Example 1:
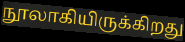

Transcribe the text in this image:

நூலாகியிருக்கிறது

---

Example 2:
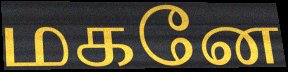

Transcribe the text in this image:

மகனே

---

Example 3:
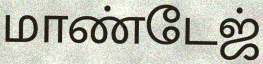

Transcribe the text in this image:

மாண்டேஜ்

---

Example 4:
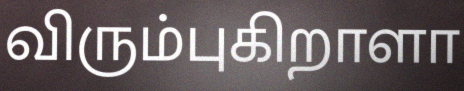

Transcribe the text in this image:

விரும்புகிறாளா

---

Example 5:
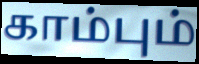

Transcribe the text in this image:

காம்பும்